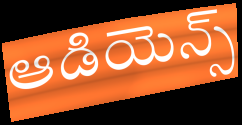
ఆడియెన్స్